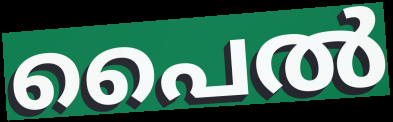
പൈൽ